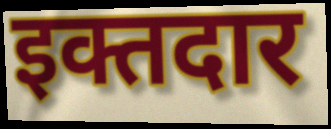
इक्तदार